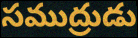
సముద్రుడు